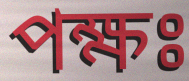
পক্ষঃ